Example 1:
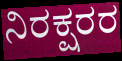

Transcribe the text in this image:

ನಿರಕ್ಷರರ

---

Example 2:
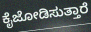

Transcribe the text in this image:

ಕೈಜೋಡಿಸುತ್ತಾರೆ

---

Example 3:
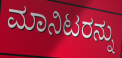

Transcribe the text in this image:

ಮಾನಿಟರನ್ನು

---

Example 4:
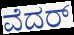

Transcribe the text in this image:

ವೆದರ್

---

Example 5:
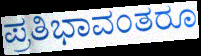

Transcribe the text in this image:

ಪ್ರತಿಭಾವಂತರೂ